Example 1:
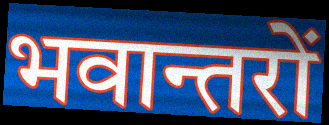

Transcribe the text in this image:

भवान्तरों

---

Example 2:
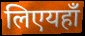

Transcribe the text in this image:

लिएयहाँ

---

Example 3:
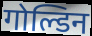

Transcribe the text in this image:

गोल्डिन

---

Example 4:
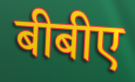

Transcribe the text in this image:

बीबीए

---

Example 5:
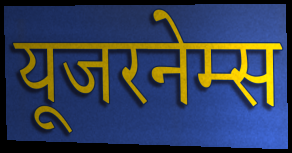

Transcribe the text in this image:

यूजरनेम्स